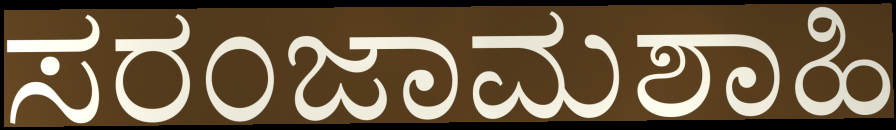
ಸರಂಜಾಮಶಾಹಿ